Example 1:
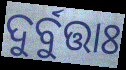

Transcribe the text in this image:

ଦୁର୍ବୁତ୍ତାଃ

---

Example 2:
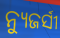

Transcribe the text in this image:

ନ୍ୟୁଜର୍ସୀ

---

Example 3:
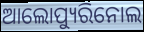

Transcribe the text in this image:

ଆଲୋପ୍ୟୁରିନୋଲ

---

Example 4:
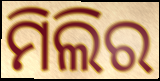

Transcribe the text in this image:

ମିଲିର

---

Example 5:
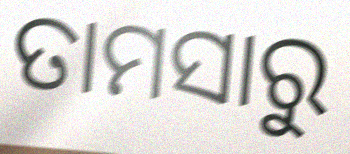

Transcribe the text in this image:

ତାମସାରୁ